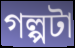
গল্পটা